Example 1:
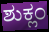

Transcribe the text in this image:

ಶುಕ್ಲಂ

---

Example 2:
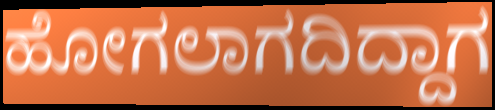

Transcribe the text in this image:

ಹೋಗಲಾಗದಿದ್ದಾಗ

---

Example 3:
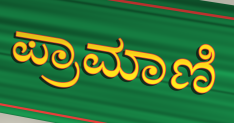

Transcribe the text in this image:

ಪ್ರಾಮಾಣಿ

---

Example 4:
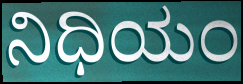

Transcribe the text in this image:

ನಿಧಿಯಂ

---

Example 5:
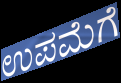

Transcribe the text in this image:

ಉಪಮೆಗೆ